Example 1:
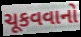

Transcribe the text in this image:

ચૂકવવાનો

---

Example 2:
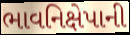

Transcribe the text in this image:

ભાવનિક્ષેપાની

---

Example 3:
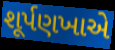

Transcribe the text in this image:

શૂર્પણખાએ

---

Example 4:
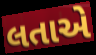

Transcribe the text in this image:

લતાએ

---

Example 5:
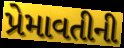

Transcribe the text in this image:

પ્રેમાવતીની